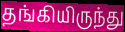
தங்கியிருந்து